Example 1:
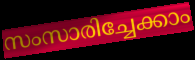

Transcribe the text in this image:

സംസാരിച്ചേക്കാം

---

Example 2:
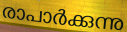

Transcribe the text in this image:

രാപാർക്കുന്നു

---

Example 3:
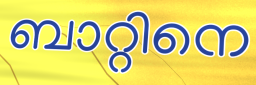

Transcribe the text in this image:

ബാറ്റിനെ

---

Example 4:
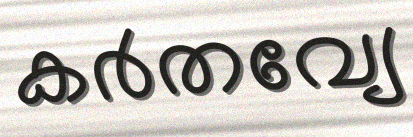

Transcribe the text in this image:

കർതവ്യേ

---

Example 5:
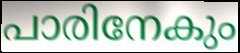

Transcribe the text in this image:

പാരിനേകും